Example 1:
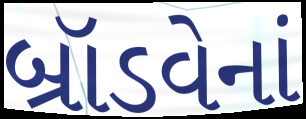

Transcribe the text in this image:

બ્રૉડવેનાં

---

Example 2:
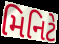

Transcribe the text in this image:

મિનિટે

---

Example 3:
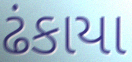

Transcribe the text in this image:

ઢંકાયા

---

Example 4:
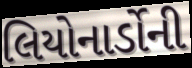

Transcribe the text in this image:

લિયોનાર્ડોની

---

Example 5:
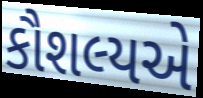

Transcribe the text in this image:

કૌશલ્યએ